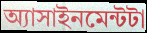
অ্যাসাইনমেন্টটা